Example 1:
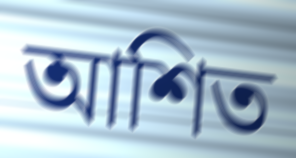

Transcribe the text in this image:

আশিত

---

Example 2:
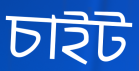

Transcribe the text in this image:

চাইট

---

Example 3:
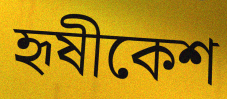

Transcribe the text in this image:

হৃষীকেশ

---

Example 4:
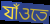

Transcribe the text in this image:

যাঁওতে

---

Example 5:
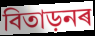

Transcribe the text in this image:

বিতাড়নৰ